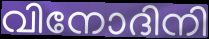
വിനോദിനി